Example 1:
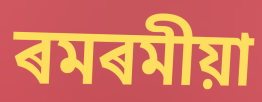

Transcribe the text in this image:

ৰমৰমীয়া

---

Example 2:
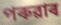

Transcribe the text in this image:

পৰুৱাৰ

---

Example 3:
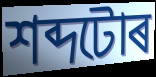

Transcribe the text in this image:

শব্দটোৰ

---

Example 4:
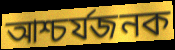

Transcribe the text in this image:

আশ্চৰ্যজনক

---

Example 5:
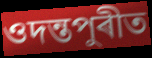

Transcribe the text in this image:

ওদন্তপুৰীত